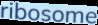
ribosome